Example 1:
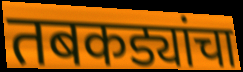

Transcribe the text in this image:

तबकड्यांचा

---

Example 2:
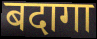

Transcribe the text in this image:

बदागा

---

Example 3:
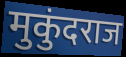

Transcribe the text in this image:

मुकुंदराज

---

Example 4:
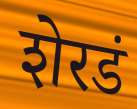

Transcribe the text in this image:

शेरडं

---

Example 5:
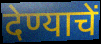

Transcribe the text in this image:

देण्याचें